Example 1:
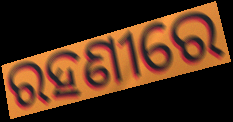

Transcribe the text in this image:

ରହଣୀରେ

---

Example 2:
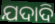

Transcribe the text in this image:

ଯଦାଦି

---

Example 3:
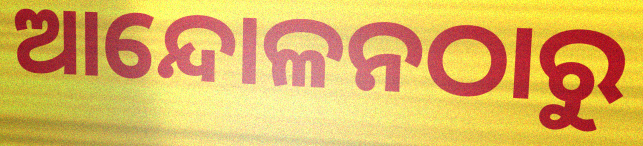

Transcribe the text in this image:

ଆନ୍ଦୋଳନଠାରୁ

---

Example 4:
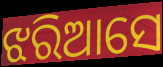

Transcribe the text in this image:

ଝରିଆସେ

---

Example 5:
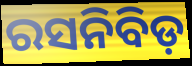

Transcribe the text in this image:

ରସନିବିଡ଼